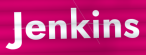
Jenkins